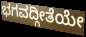
ಭಗವದ್ಗೀತೆಯೇ